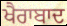
ਖੈਰਾਬਾਦ